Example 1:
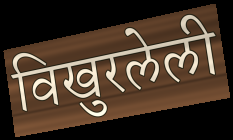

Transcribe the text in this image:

विखुरलेली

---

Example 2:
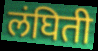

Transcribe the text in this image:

लंघिती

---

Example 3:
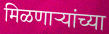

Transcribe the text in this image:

मिळणाऱ्यांच्या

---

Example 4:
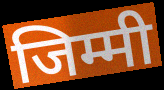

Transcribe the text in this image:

जिम्मी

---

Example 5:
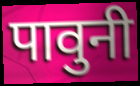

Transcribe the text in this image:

पावुनी